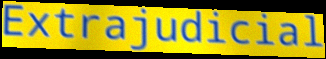
Extrajudicial